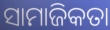
ସାମାଜିକତା